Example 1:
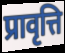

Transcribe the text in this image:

प्रावृत्ति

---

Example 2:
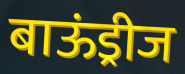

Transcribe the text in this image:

बाऊंड्रीज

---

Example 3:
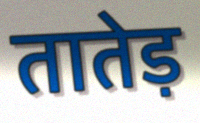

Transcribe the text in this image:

तातेड़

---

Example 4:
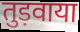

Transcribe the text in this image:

तुड़वाया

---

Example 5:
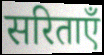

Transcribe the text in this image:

सरिताएँ